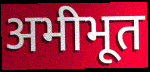
अभीभूत